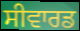
ਸੀਵਾਰਡ